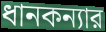
ধানকন্যার